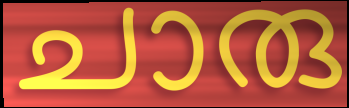
ചാരു